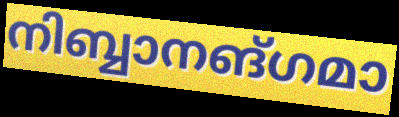
നിബ്ബാനങ്ഗമാ